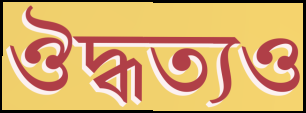
ঔদ্ধত্যও